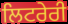
ਲਿਟਰੇਰੀ